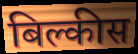
बिल्कीस